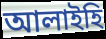
আলাইহি